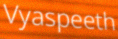
Vyaspeeth